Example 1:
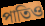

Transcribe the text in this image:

পাতিও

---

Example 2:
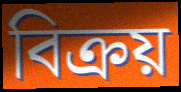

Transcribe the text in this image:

বিক্ৰয়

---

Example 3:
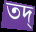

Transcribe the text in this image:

তদ্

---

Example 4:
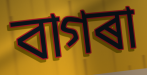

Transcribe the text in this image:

বাগৰা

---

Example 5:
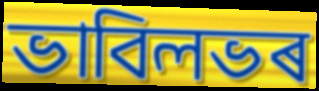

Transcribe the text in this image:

ভাবিলভৰ